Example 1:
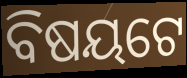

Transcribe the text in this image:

ବିଷୟଟେ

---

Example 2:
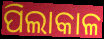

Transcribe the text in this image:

ପିଲାକାଳ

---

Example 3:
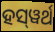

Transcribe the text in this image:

ହସ୍‌ୱର୍ଥ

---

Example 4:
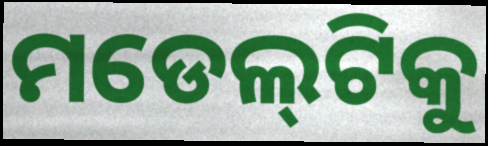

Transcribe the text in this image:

ମଡେଲ୍‌ଟିକୁ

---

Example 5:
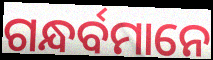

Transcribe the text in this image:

ଗନ୍ଧର୍ବମାନେ